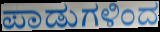
ಪಾಡುಗಳಿಂದ